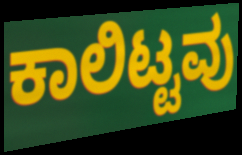
ಕಾಲಿಟ್ಟವು